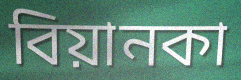
বিয়ানকা